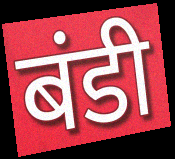
बंडी